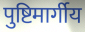
पुष्टिमार्गीय